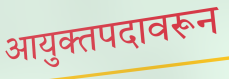
आयुक्तपदावरून